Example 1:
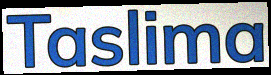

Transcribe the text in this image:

Taslima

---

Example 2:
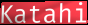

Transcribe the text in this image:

Katahi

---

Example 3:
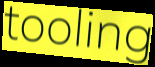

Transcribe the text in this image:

tooling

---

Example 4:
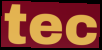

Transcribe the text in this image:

tec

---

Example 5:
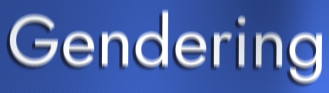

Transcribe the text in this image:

Gendering